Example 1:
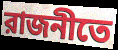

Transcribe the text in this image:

রাজনীতে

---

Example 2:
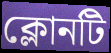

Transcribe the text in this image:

ক্লোনটি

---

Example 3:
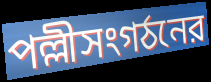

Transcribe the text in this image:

পল্লীসংগঠনের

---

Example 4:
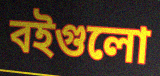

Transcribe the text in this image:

বইগুলো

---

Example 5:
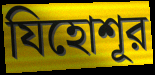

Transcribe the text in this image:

যিহোশূর